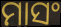
ମାସଂ